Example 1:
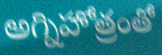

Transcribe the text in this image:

అగ్నిహోత్రంతో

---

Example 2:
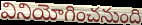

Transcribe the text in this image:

వినియోగించనుంది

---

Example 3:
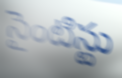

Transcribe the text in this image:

సైంటిస్టు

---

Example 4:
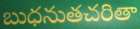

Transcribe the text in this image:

బుధనుతచరితా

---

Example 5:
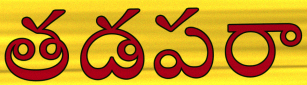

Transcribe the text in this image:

తడపరా